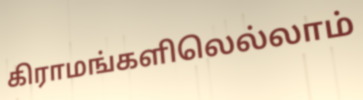
கிராமங்களிலெல்லாம்